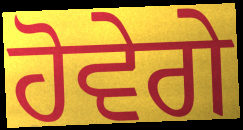
ਹੋਵੇਗੇ